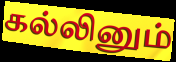
கல்லினும்